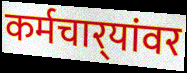
कर्मचार्‍यांवर